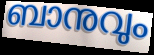
ബാനുവും